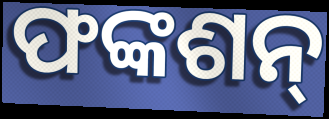
ଫଙ୍କଶନ୍